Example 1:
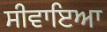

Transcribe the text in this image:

ਸੀਵਾਇਆ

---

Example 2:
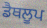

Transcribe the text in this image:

ਡੈਥਲੂਪ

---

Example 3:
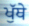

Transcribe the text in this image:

ਖੁੱਥੇ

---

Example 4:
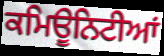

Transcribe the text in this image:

ਕਮਿਊਨਿਟੀਆਂ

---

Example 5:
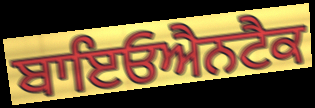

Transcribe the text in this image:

ਬਾਇਓਐਨਟੈਕ